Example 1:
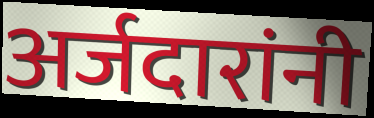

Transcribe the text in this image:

अर्जदारांनी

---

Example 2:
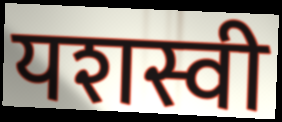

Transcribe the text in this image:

यशस्‍वी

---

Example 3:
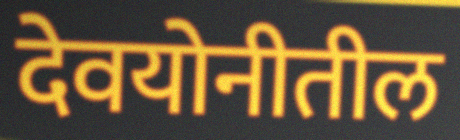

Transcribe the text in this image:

देवयोनीतील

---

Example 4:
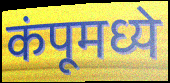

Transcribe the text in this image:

कंपूमध्ये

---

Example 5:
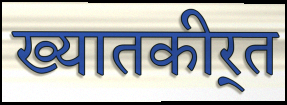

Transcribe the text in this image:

ख्यातकीर्त